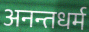
अनन्तधर्म